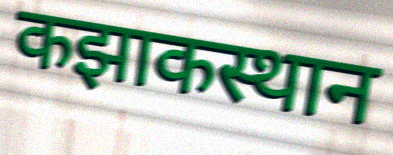
कझाकस्थान